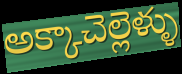
అక్కాచెల్లెళ్ళు